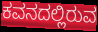
ಕವನದಲ್ಲಿರುವ